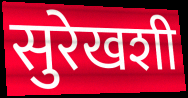
सुरेखशी